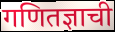
गणितज्ञाची